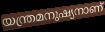
യന്ത്രമനുഷ്യനാണ്